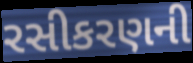
રસીકરણની